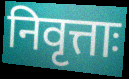
निवृत्ताः